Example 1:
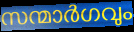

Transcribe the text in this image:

സന്മാർഗവും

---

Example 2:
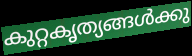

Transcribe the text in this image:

കുറ്റകൃത്യങ്ങൾക്കു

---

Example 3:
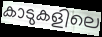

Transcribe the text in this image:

കാടുകളിലെ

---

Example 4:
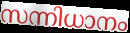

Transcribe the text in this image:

സന്നിധാനം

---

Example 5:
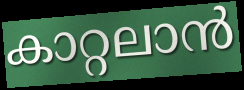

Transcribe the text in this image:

കാറ്റലാൻ